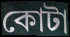
কোটা